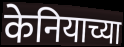
केनियाच्या